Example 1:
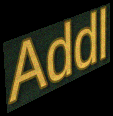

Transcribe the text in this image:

Addl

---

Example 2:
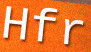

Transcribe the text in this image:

Hfr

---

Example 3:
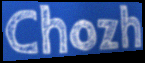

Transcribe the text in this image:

Chozh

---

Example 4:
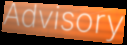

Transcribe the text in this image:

Advisory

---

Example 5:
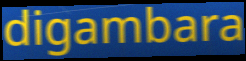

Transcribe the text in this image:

digambara